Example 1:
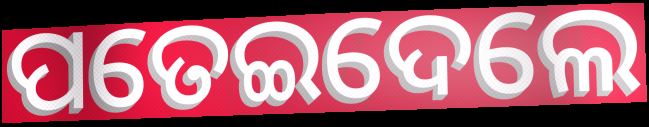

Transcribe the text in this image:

ପତେଇଦେଲେ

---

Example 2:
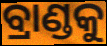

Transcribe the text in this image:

ବ୍ରାଣ୍ଡକୁ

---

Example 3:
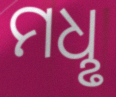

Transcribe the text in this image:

ମଧୢ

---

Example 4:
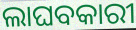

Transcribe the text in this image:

ଲାଘବକାରୀ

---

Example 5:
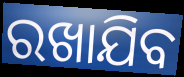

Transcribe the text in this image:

ରଖାଯିବ